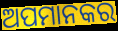
ଅପମାନକର